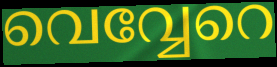
വെവ്വേറെ